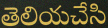
తెలియచేసి